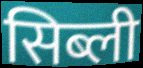
सिब्ली